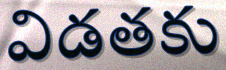
విడతకు